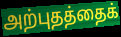
அற்புதத்தைக்